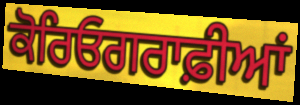
ਕੋਰਿਓਗਰਾਫ਼ੀਆਂ